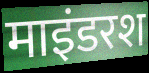
माइंडरश